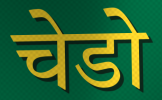
चेडो